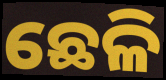
ଛେଳି